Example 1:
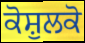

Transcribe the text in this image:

ਕੋਸ਼ੁਲਕੋ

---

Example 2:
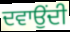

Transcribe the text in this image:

ਦਵਾਉਂਦੀ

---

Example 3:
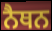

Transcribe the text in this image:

ਨੈਥਨ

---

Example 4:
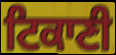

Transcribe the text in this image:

ਟਿਕਾਣੀ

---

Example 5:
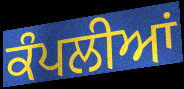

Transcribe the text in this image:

ਕੰਪਲੀਆਂ